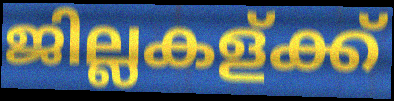
ജില്ലകള്ക്ക്